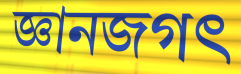
জ্ঞানজগৎ